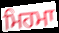
ਮਿਹਮਾ